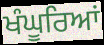
ਖੰਘੂਰਿਆਂ